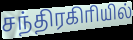
சந்திரகிரியில்